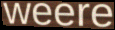
weere